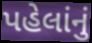
પહેલાંનું